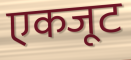
एकजूट